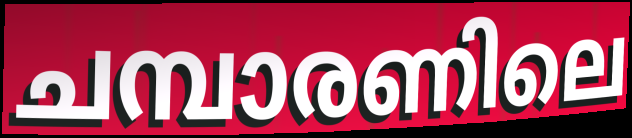
ചമ്പാരണിലെ